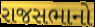
રાજસભાનો